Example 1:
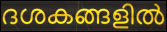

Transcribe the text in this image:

ദശകങ്ങളിൽ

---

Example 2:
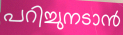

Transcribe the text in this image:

പറിച്ചുനടാൻ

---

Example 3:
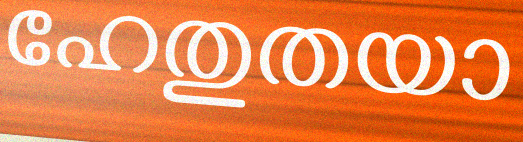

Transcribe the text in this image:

ഹേതുതയാ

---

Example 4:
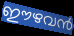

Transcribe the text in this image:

ഈഴവൻ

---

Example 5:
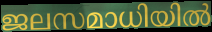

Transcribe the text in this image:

ജലസമാധിയിൽ